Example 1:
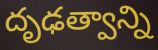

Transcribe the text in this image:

దృఢత్వాన్ని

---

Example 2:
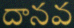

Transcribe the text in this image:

దానవ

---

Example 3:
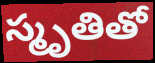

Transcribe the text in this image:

స్మృతితో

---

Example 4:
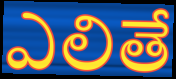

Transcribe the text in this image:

ఎలితే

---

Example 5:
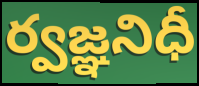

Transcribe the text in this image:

ర్వజ్ఞనిధీ